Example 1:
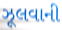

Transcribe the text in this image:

ઝૂલવાની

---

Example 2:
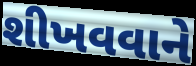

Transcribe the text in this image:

શીખવવાને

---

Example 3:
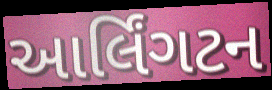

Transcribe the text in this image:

આર્લિંગટન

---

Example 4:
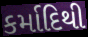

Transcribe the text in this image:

કર્માદિથી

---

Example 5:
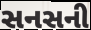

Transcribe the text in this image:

સનસની